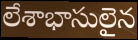
లేశాభాసులైన